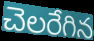
చెలరేగిన